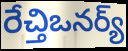
రేచ్తిఒనర్య్